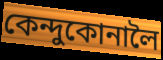
কেন্দুকোনালৈ